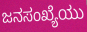
ಜನಸಂಖ್ಯೆಯು